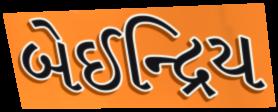
બેઈન્દ્રિય